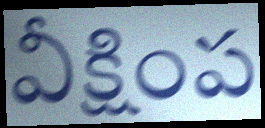
వీక్షింప